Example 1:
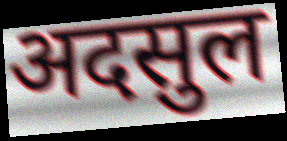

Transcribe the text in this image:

अदसुल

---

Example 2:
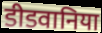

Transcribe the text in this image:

डीडवानिया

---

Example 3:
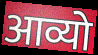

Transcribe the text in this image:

आव्यो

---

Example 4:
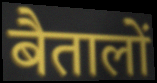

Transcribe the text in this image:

बैतालों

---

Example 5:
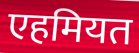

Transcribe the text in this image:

एहमियत